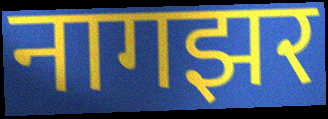
नागझर